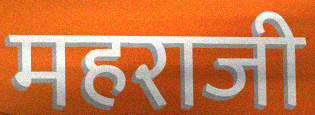
महराजी